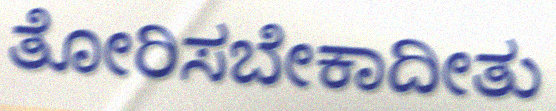
ತೋರಿಸಬೇಕಾದೀತು